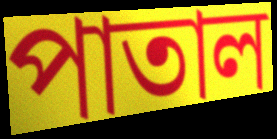
পাতাল